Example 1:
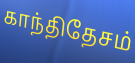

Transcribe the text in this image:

காந்திதேசம்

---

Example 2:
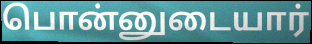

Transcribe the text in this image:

பொன்னுடையார்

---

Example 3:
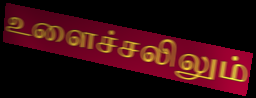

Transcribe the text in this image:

உளைச்சலிலும்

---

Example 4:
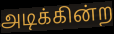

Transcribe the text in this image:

அடிக்கின்ற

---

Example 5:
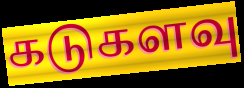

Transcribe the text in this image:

கடுகளவு